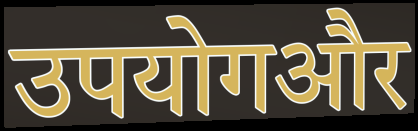
उपयोगऔर